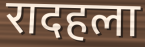
रादहला